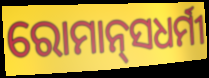
ରୋମାନ୍‍ସଧର୍ମୀ